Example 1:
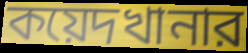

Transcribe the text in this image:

কয়েদখানার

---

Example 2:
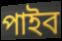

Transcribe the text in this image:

পাইব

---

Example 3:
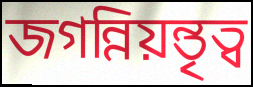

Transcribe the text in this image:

জগন্নিয়ন্তৃত্ব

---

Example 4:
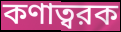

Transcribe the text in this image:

কণাত্বরক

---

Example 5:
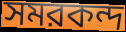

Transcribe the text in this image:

সমরকন্দ